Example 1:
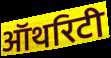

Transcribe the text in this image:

ऑथरिटी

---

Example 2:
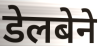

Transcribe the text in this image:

डेलबेने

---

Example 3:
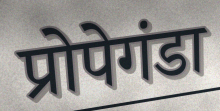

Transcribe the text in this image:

प्रोपेगंडा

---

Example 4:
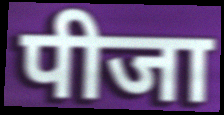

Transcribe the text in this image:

पीजा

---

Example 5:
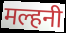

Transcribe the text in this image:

मल्हनी